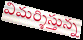
విమర్శిస్తున్న